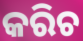
କରିଚ